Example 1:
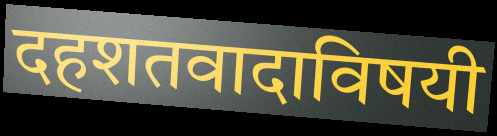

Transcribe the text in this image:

दहशतवादाविषयी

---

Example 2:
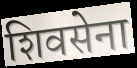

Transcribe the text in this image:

शिवसेना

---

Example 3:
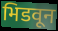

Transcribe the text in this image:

भिडवून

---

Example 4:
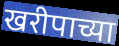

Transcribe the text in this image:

खरीपाच्या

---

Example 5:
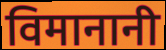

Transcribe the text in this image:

विमानानी